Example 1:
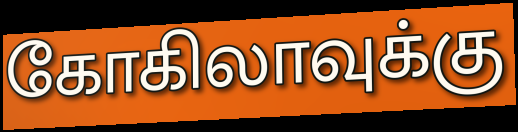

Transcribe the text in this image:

கோகிலாவுக்கு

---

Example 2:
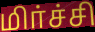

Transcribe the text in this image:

மிர்ச்சி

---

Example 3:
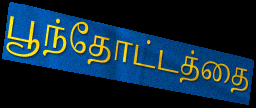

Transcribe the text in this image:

பூந்தோட்டத்தை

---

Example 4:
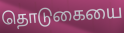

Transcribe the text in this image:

தொடுகையை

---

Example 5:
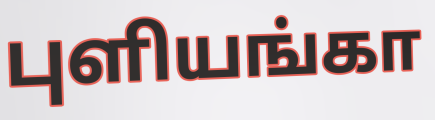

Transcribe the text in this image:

புளியங்கா